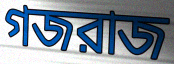
গজরাজ